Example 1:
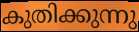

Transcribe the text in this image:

കുതിക്കുന്നു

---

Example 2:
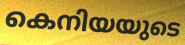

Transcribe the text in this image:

കെനിയയുടെ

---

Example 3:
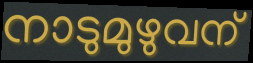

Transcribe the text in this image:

നാടുമുഴുവന്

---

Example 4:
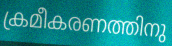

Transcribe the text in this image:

ക്രമീകരണത്തിനു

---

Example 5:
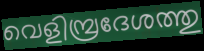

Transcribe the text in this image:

വെളിമ്പ്രദേശത്തു